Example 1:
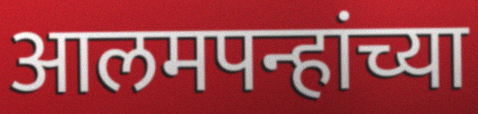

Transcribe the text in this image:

आलमपन्हांच्या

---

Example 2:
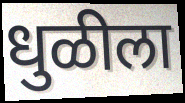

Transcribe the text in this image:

धुळीला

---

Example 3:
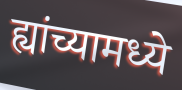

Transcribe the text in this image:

ह्यांच्यामध्ये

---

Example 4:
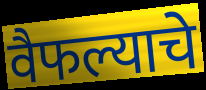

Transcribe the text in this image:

वैफल्याचे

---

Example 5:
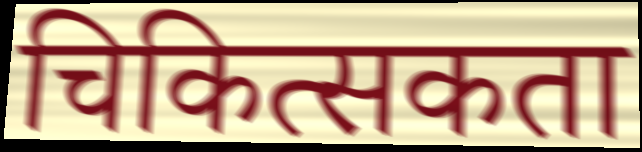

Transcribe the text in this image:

चिकित्सकता